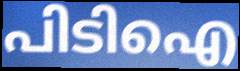
പിടിഐ